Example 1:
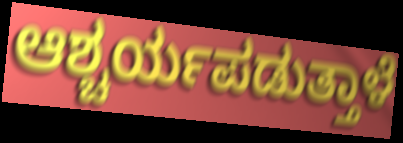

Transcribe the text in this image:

ಆಶ್ಚರ್ಯಪಡುತ್ತಾಳೆ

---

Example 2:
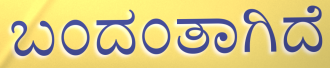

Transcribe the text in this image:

ಬಂದಂತಾಗಿದೆ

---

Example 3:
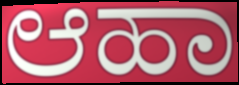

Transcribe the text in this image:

ಆಹಾ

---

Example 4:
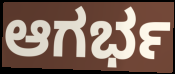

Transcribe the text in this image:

ಆಗರ್ಭ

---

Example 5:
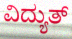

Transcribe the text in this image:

ವಿದ್ಯುತ್